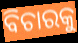
ବିଚାରକୁ